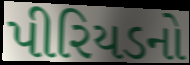
પીરિયડનો